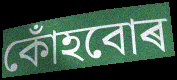
কোঁহবোৰ